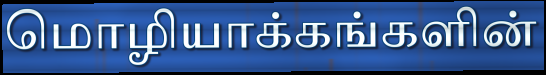
மொழியாக்கங்களின்